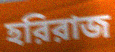
হরিরাজ